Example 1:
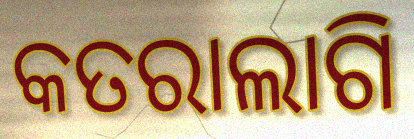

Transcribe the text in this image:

କତରାଲାଗି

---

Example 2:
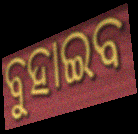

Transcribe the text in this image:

ବୁହାଇବ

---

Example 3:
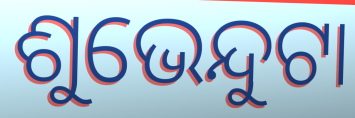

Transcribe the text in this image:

ଶୁଭେନ୍ଦୁଟା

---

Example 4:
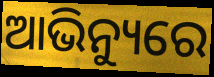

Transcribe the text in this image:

ଆଭିନ୍ୟୁରେ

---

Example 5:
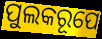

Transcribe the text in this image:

ପୁଲକରୂପେ